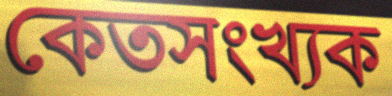
কেতসংখ্যক